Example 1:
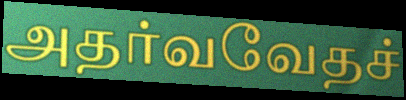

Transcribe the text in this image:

அதர்வவேதச்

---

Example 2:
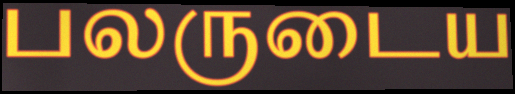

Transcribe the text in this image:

பலருடைய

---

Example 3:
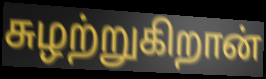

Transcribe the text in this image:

சுழற்றுகிறான்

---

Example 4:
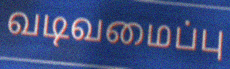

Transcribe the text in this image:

வடிவமைப்பு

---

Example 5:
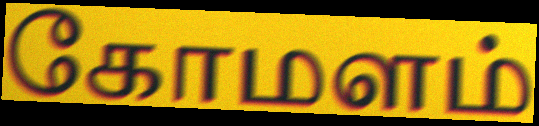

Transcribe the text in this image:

கோமளம்